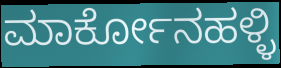
ಮಾರ್ಕೋನಹಳ್ಳಿ